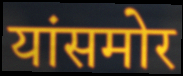
यांसमोर